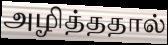
அழித்ததால்